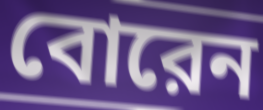
বোরেন